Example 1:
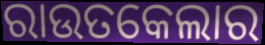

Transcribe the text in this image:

ରାଉତକେଲାର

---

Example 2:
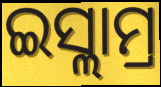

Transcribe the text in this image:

ଇସ୍ଲାମ୍ର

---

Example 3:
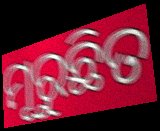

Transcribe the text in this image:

ମୂରୁଛିତ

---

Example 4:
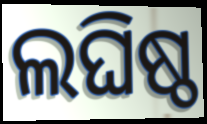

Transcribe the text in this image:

ଲଘିଷ୍ଠ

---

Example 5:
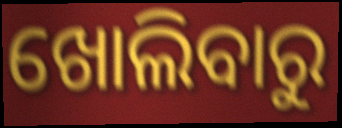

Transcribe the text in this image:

ଖୋଲିବାରୁ